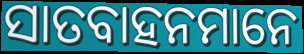
ସାତବାହନମାନେ